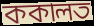
ককালত